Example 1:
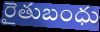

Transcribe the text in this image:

రైతుబంధు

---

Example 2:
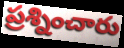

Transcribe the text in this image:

ప్రశ్నించారు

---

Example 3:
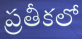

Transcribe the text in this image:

ప్రతీకలో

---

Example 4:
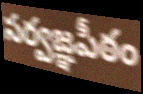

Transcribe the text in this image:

సర్వజ్ఞపీఠం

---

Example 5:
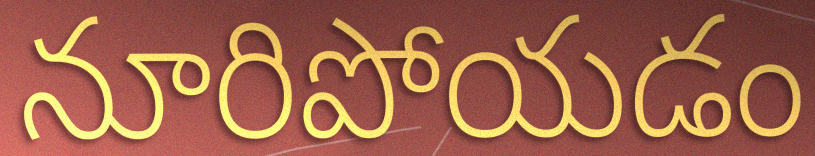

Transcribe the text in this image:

నూరిపోయడం